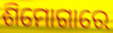
ଶିମୋଗାରେ